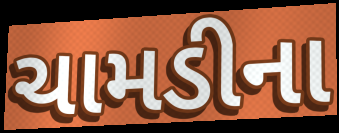
ચામડીના